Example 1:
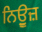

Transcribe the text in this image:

ਨਿਉੂਜ਼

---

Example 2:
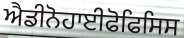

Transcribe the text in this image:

ਐਡੀਨੋਹਾਈਫੋਫਿਸਿਸ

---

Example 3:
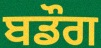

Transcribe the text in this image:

ਬਡੌਗ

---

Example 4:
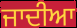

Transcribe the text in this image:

ਜਾਦੀਆ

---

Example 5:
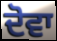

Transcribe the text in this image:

ਦੋਵਾ